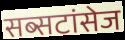
सब्सटांसेज